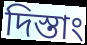
দিস্তাং